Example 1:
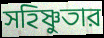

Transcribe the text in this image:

সহিষ্ণুতার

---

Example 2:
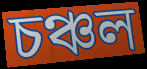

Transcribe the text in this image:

চঞ্চল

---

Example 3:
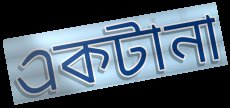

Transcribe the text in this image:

একটানা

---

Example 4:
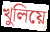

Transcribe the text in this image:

খুলিয়ে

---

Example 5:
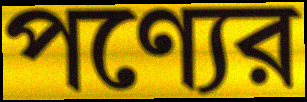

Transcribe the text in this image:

পণ্যের